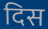
दिस